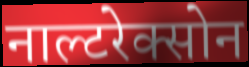
नाल्टरेक्सोन